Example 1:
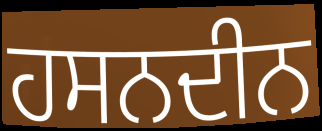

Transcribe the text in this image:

ਹਸਨਦੀਨ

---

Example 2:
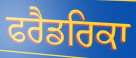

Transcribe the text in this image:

ਫਰੈਡਰਿਕਾ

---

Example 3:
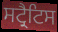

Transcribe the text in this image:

ਸਟ੍ਰੈਟਿਸ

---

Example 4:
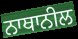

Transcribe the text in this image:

ਨਾਥਾਨੀਲ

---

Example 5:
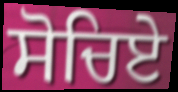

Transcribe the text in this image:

ਸੋਚਿਏ